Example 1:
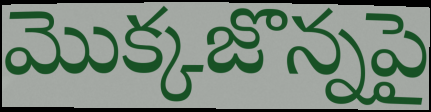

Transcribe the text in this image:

మొక్కజొన్నపై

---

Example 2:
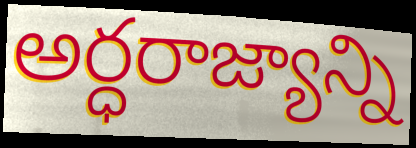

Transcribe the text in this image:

అర్ధరాజ్యాన్ని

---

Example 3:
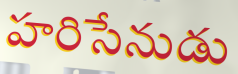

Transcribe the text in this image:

హరిసేనుడు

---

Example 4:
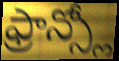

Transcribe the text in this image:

ఫ్రాన్స్లో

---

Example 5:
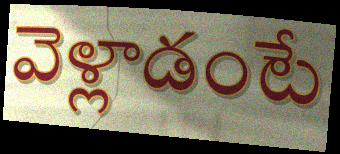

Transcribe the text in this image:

వెళ్లాడంటే